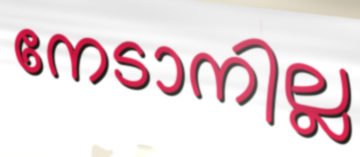
നേടാനില്ല